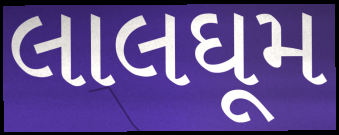
લાલઘૂમ